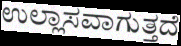
ಉಲ್ಲಾಸವಾಗುತ್ತದೆ